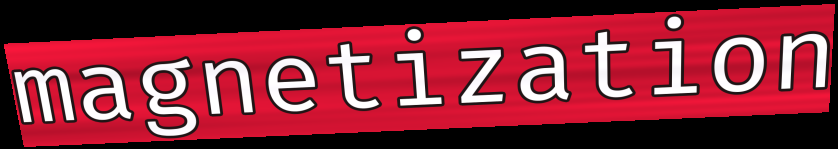
magnetization